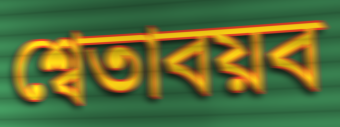
শ্বেতাবয়ব